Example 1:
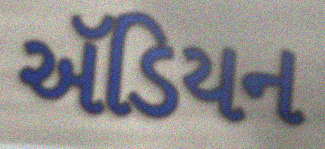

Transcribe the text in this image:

ઍંડિયન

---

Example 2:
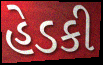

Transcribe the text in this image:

હેડકી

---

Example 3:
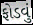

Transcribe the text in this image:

ફોડવું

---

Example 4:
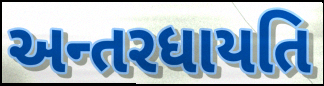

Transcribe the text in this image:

અન્તરધાયતિ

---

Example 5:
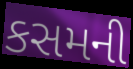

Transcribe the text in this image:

કસમની